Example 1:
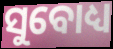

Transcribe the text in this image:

ସୁବୋଧ୍ୟ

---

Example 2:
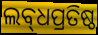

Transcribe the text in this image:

ଲବ୍‌ଧପ୍ରତିଷ୍ଠ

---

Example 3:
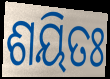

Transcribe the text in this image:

ଶୟିତଃ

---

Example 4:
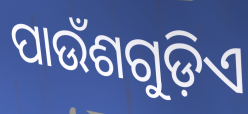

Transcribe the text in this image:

ପାଉଁଶଗୁଡ଼ିଏ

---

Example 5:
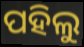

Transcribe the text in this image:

ପହିଲୁ